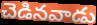
చెడినవాడు